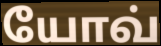
யோவ்